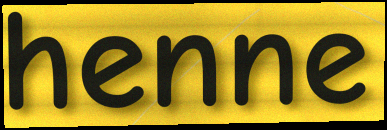
henne